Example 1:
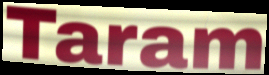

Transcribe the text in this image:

Taram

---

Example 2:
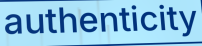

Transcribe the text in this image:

authenticity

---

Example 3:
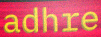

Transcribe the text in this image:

adhre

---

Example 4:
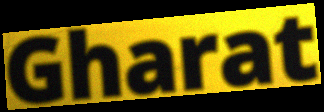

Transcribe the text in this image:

Gharat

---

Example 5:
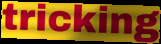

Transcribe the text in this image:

tricking